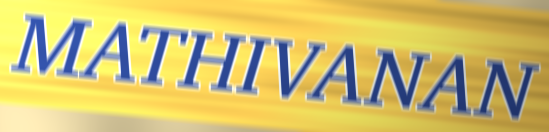
MATHIVANAN